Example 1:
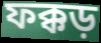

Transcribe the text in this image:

ফক্কড়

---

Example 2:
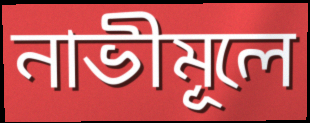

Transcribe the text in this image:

নাভীমূলে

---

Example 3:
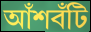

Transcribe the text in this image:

আঁশবঁটি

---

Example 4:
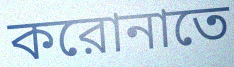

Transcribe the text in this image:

করোনাতে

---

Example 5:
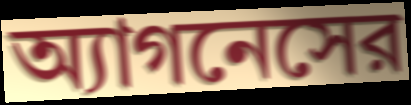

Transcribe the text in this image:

অ্যাগনেসের